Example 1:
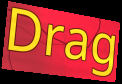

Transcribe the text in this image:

Drag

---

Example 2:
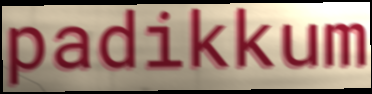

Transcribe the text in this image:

padikkum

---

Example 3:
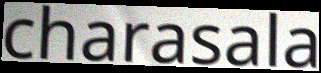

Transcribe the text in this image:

charasala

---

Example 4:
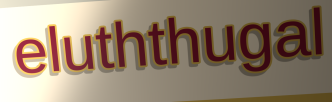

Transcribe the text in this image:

eluththugal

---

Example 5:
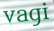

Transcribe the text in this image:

vagi